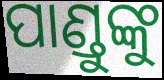
ପାଣ୍ଡୁଙ୍କୁ